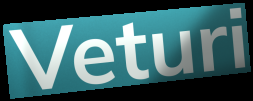
Veturi